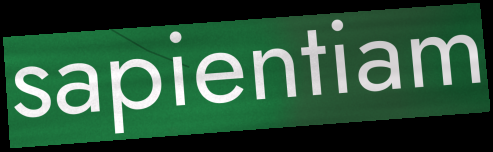
sapientiam